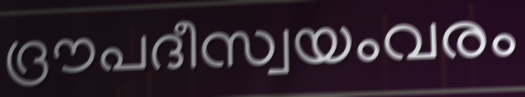
ദ്രൗപദീസ്വയംവരം